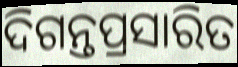
ଦିଗନ୍ତପ୍ରସାରିତ